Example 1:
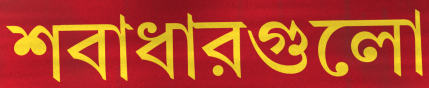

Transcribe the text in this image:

শবাধারগুলো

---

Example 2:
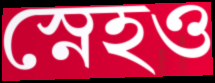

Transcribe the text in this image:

স্নেহও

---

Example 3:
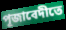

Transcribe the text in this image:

পূজাবেদীতে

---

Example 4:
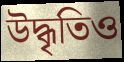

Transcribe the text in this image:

উদ্ধৃতিও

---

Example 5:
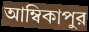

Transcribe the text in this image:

আম্বিকাপুর